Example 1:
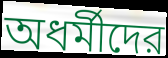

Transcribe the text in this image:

অধর্মীদের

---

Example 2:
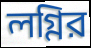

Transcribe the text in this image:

লগ্নির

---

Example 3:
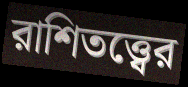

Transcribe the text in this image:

রাশিতত্ত্বের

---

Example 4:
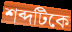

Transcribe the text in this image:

শব্দটিকে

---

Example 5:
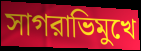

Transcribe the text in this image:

সাগরাভিমুখে